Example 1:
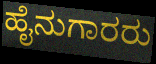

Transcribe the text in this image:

ಹೈನುಗಾರರು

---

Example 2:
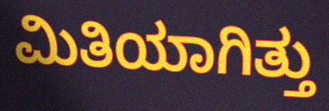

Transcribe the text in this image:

ಮಿತಿಯಾಗಿತ್ತು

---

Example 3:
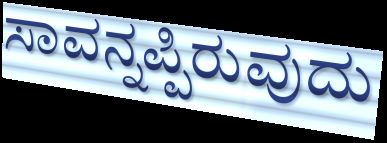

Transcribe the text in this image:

ಸಾವನ್ನಪ್ಪಿರುವುದು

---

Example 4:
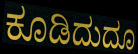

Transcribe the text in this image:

ಕೂಡಿದುದೂ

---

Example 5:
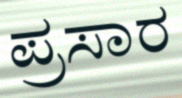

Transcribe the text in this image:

ಪ್ರಸಾರ